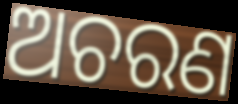
ଅଚରଣ